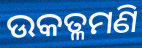
ଉକତ୍ଳମଣି